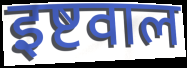
इष्टवाल